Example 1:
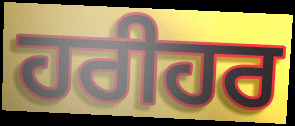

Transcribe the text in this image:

ਹਰੀਹਰ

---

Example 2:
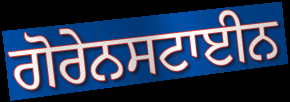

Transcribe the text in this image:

ਗੋਰੇਨਸਟਾਈਨ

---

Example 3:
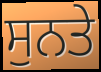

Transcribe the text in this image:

ਸੁਨਤੇ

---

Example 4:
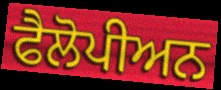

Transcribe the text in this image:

ਫੈਲੋਪੀਅਨ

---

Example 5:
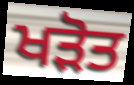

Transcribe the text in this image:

ਖੜੋਤ